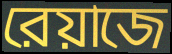
রেয়াজে